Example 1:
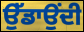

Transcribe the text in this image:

ਉੱਡਾਉਂਦੀ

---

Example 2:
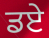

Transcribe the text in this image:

ਡਏ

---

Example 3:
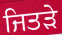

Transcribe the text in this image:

ਜਿਤੜੇ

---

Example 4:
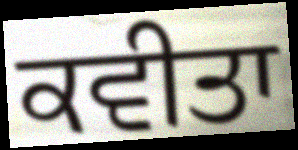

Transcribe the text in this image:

ਕਵੀਤਾ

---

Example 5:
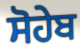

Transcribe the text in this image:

ਸੋਹੇਬ